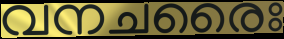
വനചരൈഃ